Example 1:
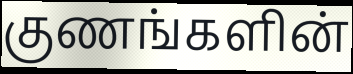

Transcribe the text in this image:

குணங்களின்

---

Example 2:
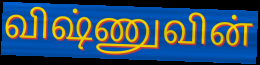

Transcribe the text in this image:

விஷ்ணுவின்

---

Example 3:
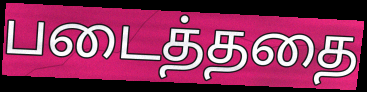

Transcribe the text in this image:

படைத்ததை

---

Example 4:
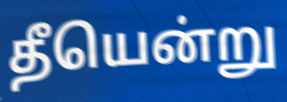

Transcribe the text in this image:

தீயென்று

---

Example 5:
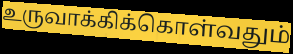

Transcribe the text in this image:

உருவாக்கிக்கொள்வதும்